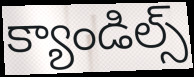
క్యాండిల్స్